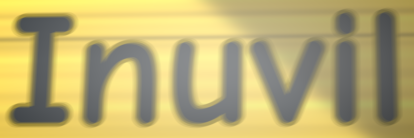
Inuvil